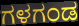
ಗಳಗಂಡ